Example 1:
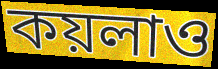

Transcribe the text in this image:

কয়লাও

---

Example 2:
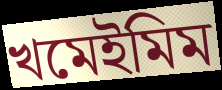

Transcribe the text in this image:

খমেইমিম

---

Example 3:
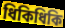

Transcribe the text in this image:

ধিকিধিকি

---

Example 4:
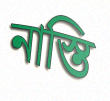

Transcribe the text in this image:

নাস্তি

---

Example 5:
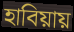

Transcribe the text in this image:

হাবিয়ায়